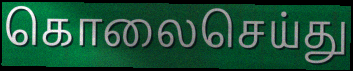
கொலைசெய்து